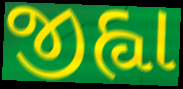
જીહ્વા